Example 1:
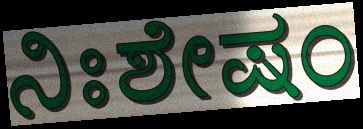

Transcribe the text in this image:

ನಿಃಶೇಷಂ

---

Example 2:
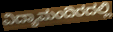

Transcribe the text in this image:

ವಿದ್ಯಾಮಂದಿರದಲ್ಲಿ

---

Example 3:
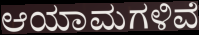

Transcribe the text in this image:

ಆಯಾಮಗಳಿವೆ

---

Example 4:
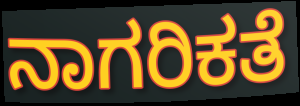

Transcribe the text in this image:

ನಾಗರಿಕತೆ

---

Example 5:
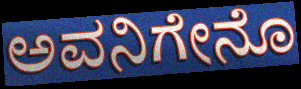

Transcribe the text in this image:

ಅವನಿಗೇನೊ